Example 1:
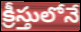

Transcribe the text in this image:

క్రీస్తులోనే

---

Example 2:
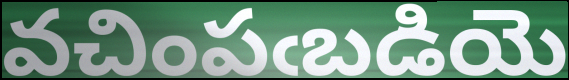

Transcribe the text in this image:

వచింపఁబడియె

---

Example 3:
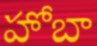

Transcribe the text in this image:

హోబా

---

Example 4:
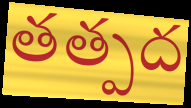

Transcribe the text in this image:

తత్పద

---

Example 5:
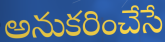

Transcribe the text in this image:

అనుకరించేసే